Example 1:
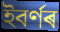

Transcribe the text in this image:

ইবৰ্ণৰ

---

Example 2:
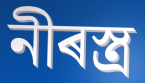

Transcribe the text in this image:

নীৰস্ত্ৰ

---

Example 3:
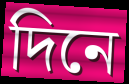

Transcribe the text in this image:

দিনে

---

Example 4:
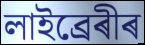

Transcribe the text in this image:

লাইব্ৰেৰীৰ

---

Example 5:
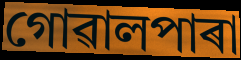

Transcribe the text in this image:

গোৱালপাৰা